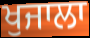
ਖੁਜਾਲਾ